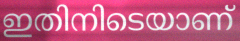
ഇതിനിടെയാണ്